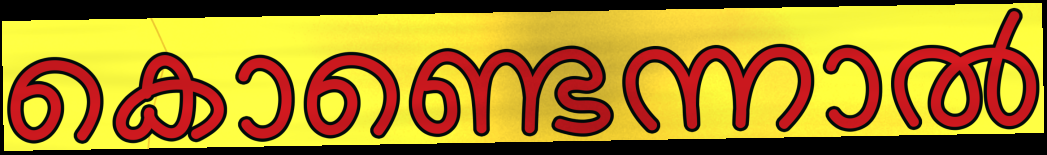
കൊണ്ടെന്നാൽ